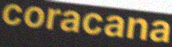
coracana